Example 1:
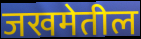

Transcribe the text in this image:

जखमेतील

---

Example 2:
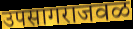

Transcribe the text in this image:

उपसागराजवळ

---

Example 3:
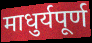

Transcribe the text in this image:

माधुर्यपूर्ण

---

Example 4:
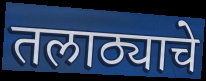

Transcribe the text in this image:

तलाठ्याचे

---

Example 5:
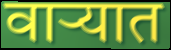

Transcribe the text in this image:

वाऱ्यात